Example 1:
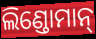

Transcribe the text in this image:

ଲିଣ୍ଡୋମାନ୍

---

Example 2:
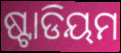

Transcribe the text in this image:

ଷ୍ଟାଡିୟମ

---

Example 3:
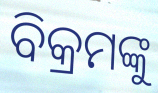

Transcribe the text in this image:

ବିକ୍ରମଙ୍କୁ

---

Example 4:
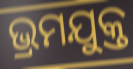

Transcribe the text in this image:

ଭ୍ରମଯୁକ୍ତ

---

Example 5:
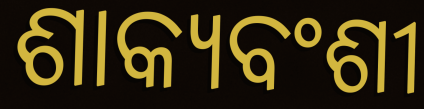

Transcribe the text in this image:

ଶାକ୍ୟବଂଶୀ